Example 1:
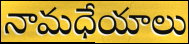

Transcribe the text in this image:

నామధేయాలు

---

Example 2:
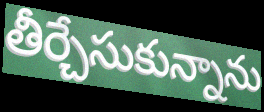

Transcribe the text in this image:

తీర్చేసుకున్నాను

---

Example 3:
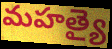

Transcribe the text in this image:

మహత్యై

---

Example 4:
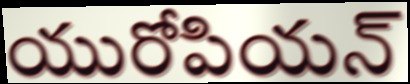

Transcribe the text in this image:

యురోపియన్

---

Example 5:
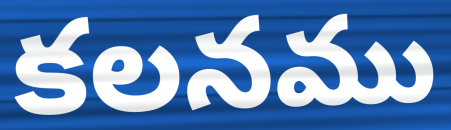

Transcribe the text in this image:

కలనము